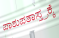
ಪಾಶುಪತಾಸ್ತ್ರಕ್ಕೆ